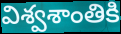
విశ్వశాంతికి